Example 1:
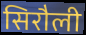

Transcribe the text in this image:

सिरौली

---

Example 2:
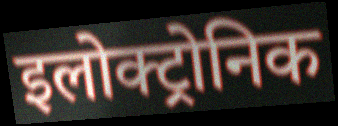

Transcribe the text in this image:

इलोक्ट्रोनिक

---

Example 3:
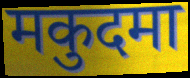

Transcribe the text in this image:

मकुदमा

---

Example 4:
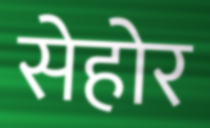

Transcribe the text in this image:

सेहोर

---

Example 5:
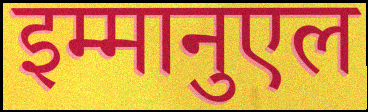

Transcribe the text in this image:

इम्मानुएल